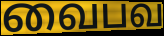
வைபவ